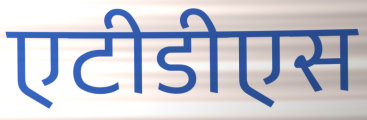
एटीडीएस